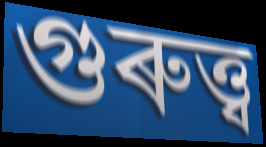
গুৰুত্ত্ব